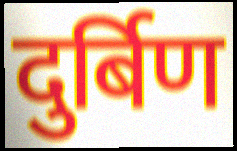
दुर्बिण